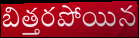
బిత్తరపోయిన